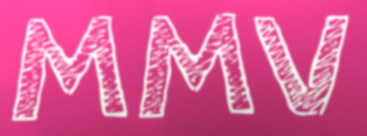
MMV